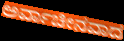
ಅರ್ವಾಚೀನವಾದ